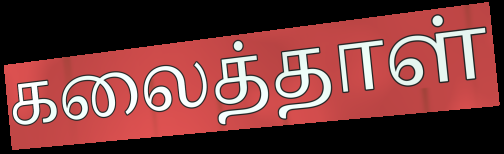
கலைத்தாள்